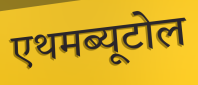
एथमब्यूटोल